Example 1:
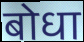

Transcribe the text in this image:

बोधा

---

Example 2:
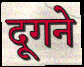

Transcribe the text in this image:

दूगने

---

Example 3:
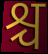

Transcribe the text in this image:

श्च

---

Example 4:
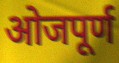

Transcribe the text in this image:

ओजपूर्ण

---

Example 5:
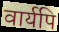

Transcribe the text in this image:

वार्यपि